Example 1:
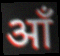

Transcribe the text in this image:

आँ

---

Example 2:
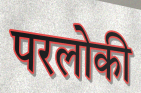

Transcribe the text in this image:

परलोकी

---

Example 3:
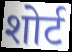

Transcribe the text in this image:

शोर्ट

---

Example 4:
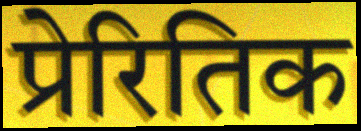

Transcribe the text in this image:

प्रेरितिक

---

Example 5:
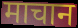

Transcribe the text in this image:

माचान